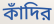
কাঁদির